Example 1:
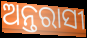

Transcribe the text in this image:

ଅନ୍ତରାସୀ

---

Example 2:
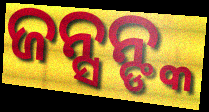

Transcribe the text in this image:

ଜନ୍ସନ୍ଙ୍କ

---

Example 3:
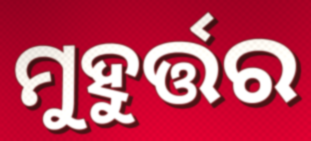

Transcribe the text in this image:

ମୁହୁର୍ତ୍ତର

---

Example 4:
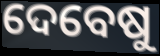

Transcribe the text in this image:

ଦେବେଷୁ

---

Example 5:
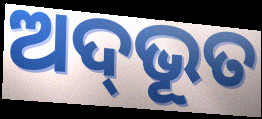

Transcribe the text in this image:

ଅଦ୍‍ଭୂତ